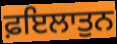
ਫ਼ਇਲਾਤੁਨ